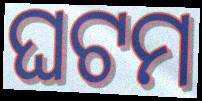
ଘଟମ